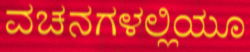
ವಚನಗಳಲ್ಲಿಯೂ